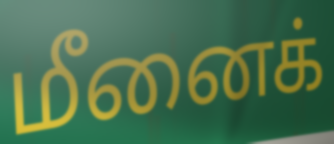
மீனைக்